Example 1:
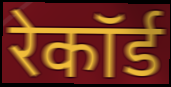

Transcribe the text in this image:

रेकॉर्ड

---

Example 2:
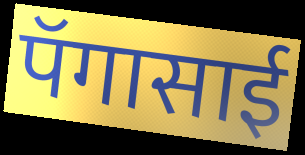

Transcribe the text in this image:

पॅगासाई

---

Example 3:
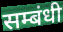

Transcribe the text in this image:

सम्बंधी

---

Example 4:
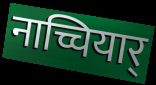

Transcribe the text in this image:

नाच्चियार्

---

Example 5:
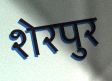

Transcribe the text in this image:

शेरपुर